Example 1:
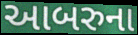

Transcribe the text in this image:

આબરુના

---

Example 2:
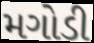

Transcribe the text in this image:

મગોડી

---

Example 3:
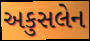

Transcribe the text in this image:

અકુસલેન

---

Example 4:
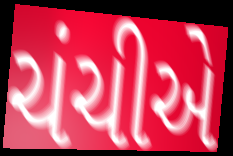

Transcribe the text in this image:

ચંચીએ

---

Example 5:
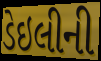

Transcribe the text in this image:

ડેઇલીની